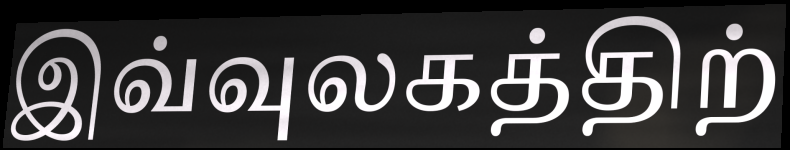
இவ்வுலகத்திற்